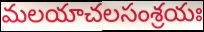
మలయాచలసంశ్రయః